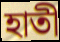
হাতী